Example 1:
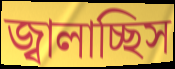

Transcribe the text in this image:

জ্বালাচ্ছিস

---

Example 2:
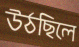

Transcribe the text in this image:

উঠছিলে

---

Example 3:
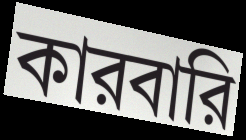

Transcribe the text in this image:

কারবারি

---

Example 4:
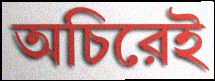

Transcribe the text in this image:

অচিরেই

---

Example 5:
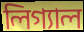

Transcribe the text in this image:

লিগ্যাল